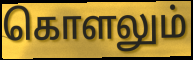
கொளலும்